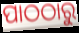
ପାଠଠାରୁ